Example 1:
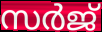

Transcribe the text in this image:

സർജ്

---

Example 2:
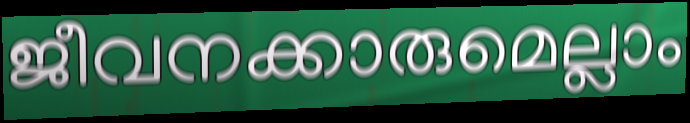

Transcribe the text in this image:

ജീവനക്കാരുമെല്ലാം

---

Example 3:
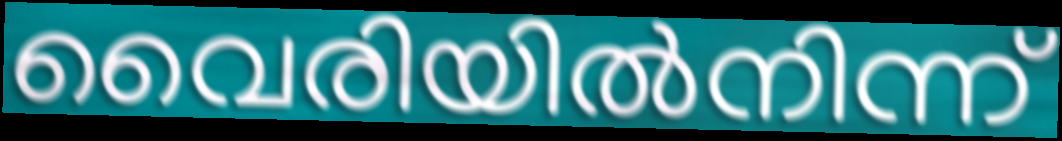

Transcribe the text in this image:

വൈരിയിൽനിന്ന്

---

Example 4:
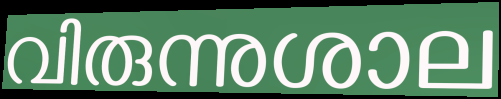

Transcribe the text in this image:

വിരുന്നുശാല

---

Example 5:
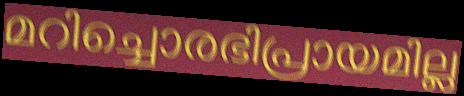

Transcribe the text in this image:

മറിച്ചൊരഭിപ്രായമില്ല